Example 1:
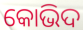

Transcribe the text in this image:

କୋଭିଦ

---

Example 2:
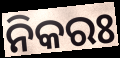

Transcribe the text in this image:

ନିକରଃ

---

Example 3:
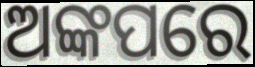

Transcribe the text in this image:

ଅଙ୍କପରେ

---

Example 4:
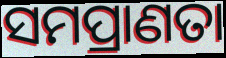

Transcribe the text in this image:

ସମପ୍ରାଣତା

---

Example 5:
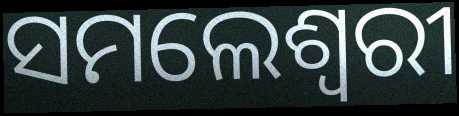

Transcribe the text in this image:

ସମଲେଶ୍ୱରୀ